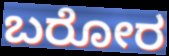
ಬರೋರ